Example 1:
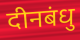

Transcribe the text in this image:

दीनबंधु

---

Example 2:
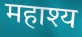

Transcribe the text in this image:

महाश्य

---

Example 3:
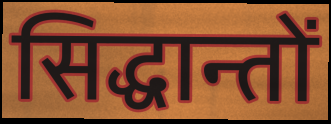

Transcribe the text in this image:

सिद्धान्तों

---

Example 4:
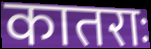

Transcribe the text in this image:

कातराः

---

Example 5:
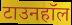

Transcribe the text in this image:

टाउनहॉल